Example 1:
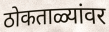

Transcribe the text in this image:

ठोकताळ्यांवर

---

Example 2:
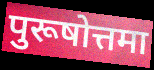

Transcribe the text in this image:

पुरूषोत्तमा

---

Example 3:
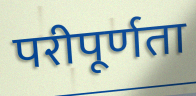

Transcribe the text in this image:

परीपूर्णता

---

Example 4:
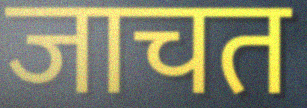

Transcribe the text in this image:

जाचत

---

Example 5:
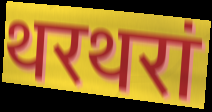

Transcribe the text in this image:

थरथरां